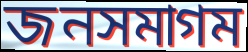
জনসমাগম